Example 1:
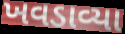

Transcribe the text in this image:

ખવડાવ્યા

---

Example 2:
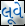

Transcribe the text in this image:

લૂવે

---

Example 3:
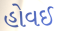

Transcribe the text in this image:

હોવઈ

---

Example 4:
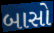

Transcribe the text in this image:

બાસો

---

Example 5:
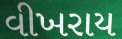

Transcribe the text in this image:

વીખરાય